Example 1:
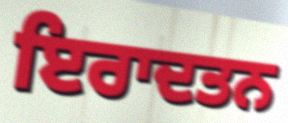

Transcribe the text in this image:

ਇਰਾਦਤਨ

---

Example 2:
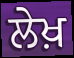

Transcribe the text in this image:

ਲੇਖ਼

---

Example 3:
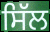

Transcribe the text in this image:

ਸਿੱਲ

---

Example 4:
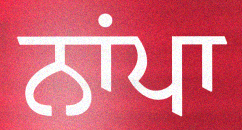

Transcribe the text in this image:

ਨਾਂਪਾ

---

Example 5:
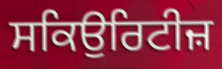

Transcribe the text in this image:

ਸਕਿਉਰਿਟੀਜ਼